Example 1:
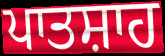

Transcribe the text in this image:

ਪਾਤਸ਼ਾਹ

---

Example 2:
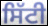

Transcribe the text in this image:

ਸਿੱਟੀ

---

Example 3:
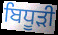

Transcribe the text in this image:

ਬਿਧੂੜੀ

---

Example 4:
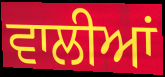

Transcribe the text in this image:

ਵਾਲੀਆਂ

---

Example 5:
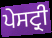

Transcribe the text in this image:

ਪੇਸਟ੍ਰੀ